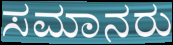
ಸಮಾನರು